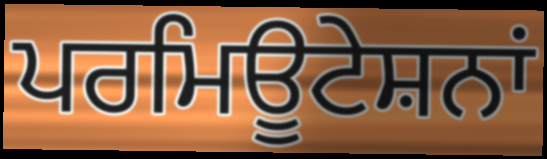
ਪਰਮਿਊਟੇਸ਼ਨਾਂ